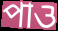
পাও